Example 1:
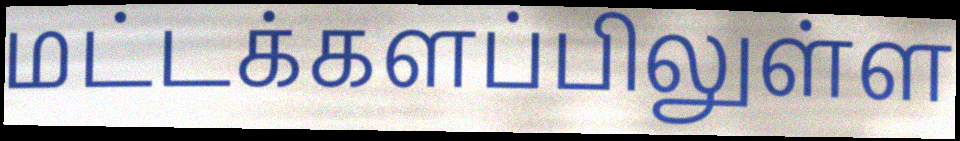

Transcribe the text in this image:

மட்டக்களப்பிலுள்ள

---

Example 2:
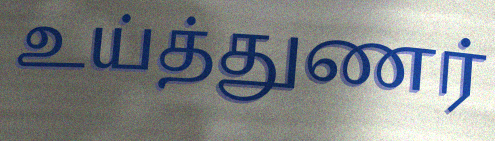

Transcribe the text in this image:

உய்த்துணர்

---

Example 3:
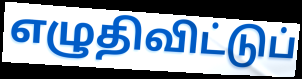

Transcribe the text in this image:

எழுதிவிட்டுப்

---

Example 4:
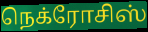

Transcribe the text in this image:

நெக்ரோசிஸ்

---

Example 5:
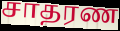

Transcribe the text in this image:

சாதரண